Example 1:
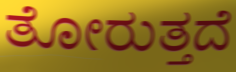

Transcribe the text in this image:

ತೋರುತ್ತದೆ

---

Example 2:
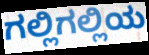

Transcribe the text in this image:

ಗಲ್ಲಿಗಲ್ಲಿಯ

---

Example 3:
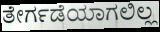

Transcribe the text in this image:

ತೇರ್ಗಡೆಯಾಗಲಿಲ್ಲ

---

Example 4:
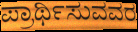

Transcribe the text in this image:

ಪ್ರಾರ್ಥಿಸುವವರ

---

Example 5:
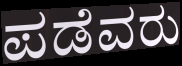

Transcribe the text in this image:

ಪಡೆವರು